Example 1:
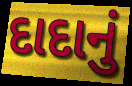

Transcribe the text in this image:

દાદાનું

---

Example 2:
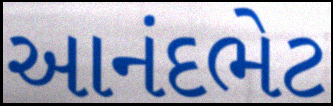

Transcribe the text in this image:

આનંદભેટ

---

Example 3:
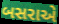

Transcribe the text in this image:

બસરાએ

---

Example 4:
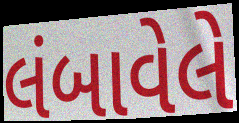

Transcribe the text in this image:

લંબાવેલે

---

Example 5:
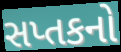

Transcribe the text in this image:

સપ્તકનો